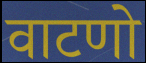
वाटणो